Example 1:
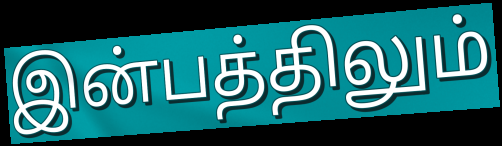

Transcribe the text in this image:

இன்பத்திலும்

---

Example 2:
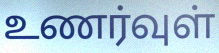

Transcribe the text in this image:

உணர்வுள்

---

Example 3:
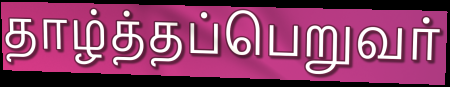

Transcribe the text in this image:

தாழ்த்தப்பெறுவர்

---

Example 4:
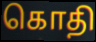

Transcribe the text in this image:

கொதி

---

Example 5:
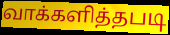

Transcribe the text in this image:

வாக்களித்தபடி